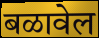
बळावेल